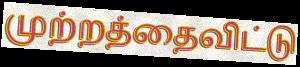
முற்றத்தைவிட்டு